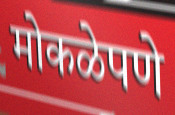
मोकळेपणे